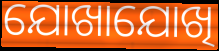
ଯୋଖାଯୋଖି